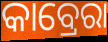
କାବ୍ରେରା